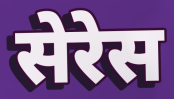
सेरेस